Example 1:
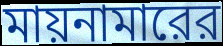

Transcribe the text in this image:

মায়নামারের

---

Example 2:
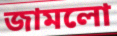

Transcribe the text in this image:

জামলো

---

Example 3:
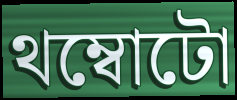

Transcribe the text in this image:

থম্বোটো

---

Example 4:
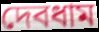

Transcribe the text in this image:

দেবধাম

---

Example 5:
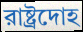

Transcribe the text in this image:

রাষ্ট্রদোহ